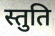
स्तुति